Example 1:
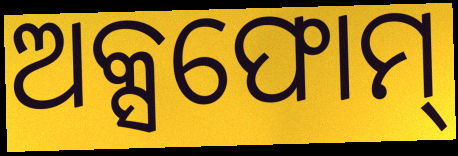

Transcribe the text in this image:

ଅକ୍ସଫୋମ୍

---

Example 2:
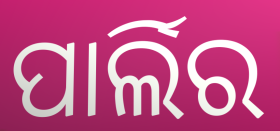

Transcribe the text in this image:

ପାର୍ଲିର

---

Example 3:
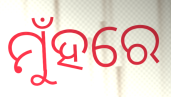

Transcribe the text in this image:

ମୁଁହରେ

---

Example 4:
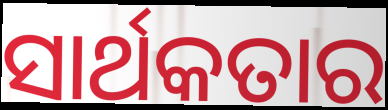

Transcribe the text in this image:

ସାର୍ଥକତାର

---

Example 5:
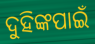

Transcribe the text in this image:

ଦୁହିଙ୍କପାଇଁ